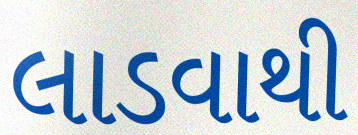
લાડવાથી